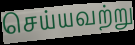
செய்யவற்று